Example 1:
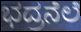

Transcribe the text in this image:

ಭದ್ರನೆಲೆ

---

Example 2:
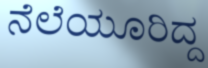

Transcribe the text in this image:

ನೆಲೆಯೂರಿದ್ದ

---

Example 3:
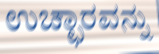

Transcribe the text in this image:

ಉಚ್ಛಾರವನ್ನು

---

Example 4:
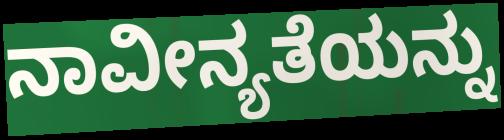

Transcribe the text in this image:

ನಾವೀನ್ಯತೆಯನ್ನು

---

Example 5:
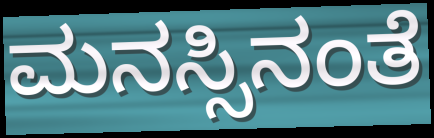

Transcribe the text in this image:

ಮನಸ್ಸಿನಂತೆ